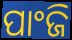
ପାଂଜି